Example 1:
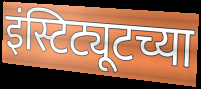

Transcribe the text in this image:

इंस्टिट्यूटच्या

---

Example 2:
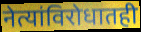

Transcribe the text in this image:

नेत्यांविरोधातही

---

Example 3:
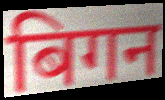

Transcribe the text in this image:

बिगन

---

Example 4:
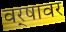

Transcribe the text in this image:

वर्षावर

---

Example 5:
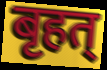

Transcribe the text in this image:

बृहत्